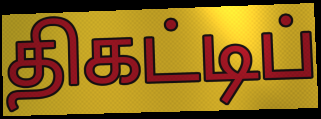
திகட்டிப்